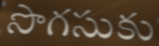
సొగసుకు